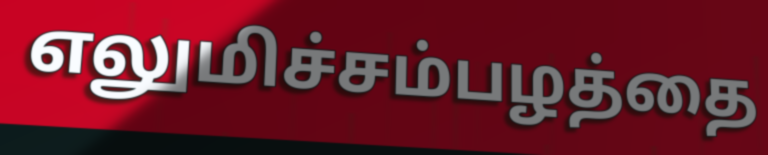
எலுமிச்சம்பழத்தை